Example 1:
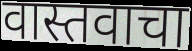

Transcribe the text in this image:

वास्तवाचा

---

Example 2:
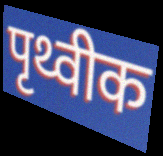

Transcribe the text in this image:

पृथ्वीक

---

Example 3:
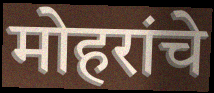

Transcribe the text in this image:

मोहरांचे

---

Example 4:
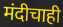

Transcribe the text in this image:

मंदीचाही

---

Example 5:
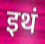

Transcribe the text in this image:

इथं